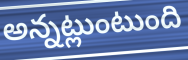
అన్నట్లుంటుంది